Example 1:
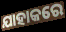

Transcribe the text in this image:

ଯାହାକରେ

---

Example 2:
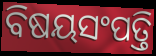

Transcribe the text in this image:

ବିଷୟସଂପତ୍ତି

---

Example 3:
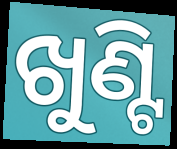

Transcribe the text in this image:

ଖୁଣ୍ଟି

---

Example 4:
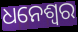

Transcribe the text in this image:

ଧନେଶ୍ବର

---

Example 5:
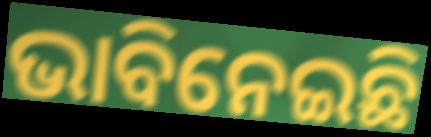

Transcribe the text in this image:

ଭାବିନେଇଛି